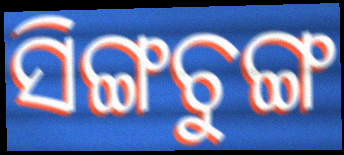
ସିଙ୍ଗଚୁଙ୍ଗ